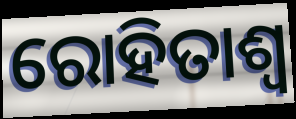
ରୋହିତାଶ୍ୱ